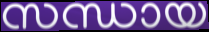
സന്ധായ